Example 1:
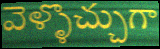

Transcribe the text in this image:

వెళ్ళొచ్చుగా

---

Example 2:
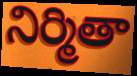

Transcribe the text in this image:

నిర్మితా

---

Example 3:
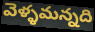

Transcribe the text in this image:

వెళ్ళమన్నది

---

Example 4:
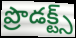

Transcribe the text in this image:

ప్రొడక్ట్స్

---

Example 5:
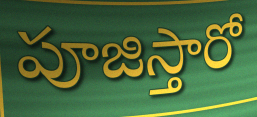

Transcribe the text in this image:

పూజిస్తారో